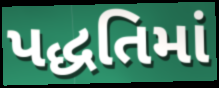
પદ્ધતિમાં